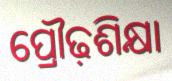
ପ୍ରୌଢ଼ଶିକ୍ଷା